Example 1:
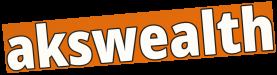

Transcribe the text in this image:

akswealth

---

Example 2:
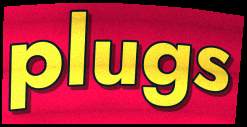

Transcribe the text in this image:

plugs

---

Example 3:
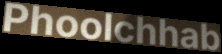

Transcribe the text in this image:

Phoolchhab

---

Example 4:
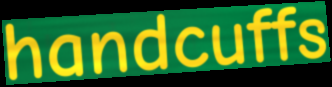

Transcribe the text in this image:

handcuffs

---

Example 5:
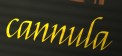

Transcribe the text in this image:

cannula